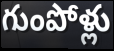
గుంపోళ్లు